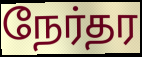
நேர்தர